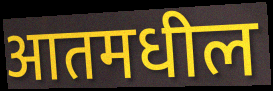
आतमधील